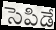
సెపిడే